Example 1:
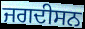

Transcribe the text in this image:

ਜਗਦੀਸਨ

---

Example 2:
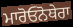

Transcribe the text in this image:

ਮਾਰੋਓਨੋਥੇਰਾ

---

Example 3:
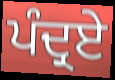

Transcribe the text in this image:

ਪੰਦ੍ਰਏ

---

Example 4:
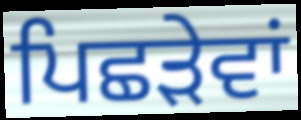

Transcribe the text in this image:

ਪਿਛੜੇਵਾਂ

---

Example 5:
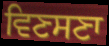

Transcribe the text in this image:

ਵਿਣਸਣਾ